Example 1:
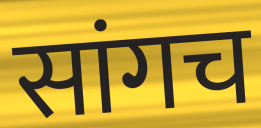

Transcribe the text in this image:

सांगच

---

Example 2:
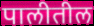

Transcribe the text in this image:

पालीतील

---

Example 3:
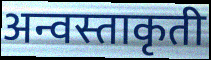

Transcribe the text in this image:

अन्वस्ताकृती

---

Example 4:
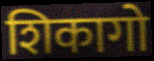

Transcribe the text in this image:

शिकागो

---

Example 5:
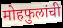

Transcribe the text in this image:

मोहफुलांची